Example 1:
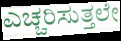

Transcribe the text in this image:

ಎಚ್ಚರಿಸುತ್ತಲೇ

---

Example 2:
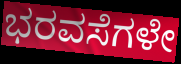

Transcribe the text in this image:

ಭರವಸೆಗಳೇ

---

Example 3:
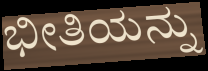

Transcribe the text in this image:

ಭೀತಿಯನ್ನು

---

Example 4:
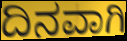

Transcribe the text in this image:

ದಿನವಾಗಿ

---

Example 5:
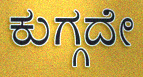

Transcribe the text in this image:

ಕುಗ್ಗದೇ